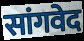
सांगवेद